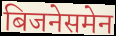
बिजनेसमेन